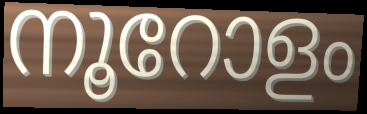
നൂറോളം